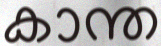
കാന്ത